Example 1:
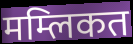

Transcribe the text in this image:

मम्लिकत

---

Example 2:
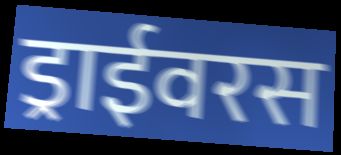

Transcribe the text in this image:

ड्राईवरस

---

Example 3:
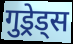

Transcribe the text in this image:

गुड्रेड्स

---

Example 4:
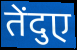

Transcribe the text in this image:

तेंदुए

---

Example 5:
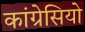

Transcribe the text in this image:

कांग्रेसियो